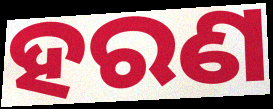
ହରଣ